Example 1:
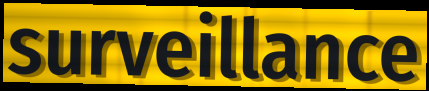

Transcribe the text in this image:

surveillance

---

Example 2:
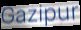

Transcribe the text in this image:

Gazipur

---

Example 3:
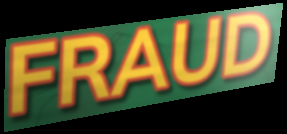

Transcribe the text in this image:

FRAUD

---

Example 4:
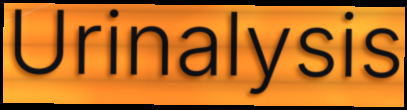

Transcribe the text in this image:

Urinalysis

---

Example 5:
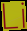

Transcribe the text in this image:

Li